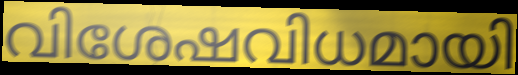
വിശേഷവിധമായി